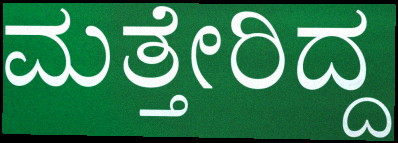
ಮತ್ತೇರಿದ್ದ